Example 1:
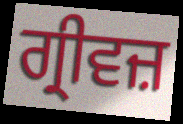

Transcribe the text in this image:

ਗ੍ਰੀਵਜ਼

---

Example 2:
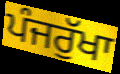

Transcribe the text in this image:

ਪੰਜਰੁੱਖਾ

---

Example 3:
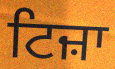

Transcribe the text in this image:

ਟਿਜ਼ਾ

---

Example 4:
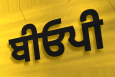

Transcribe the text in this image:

ਬੀਓਪੀ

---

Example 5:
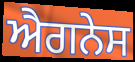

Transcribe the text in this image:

ਐਗਨੇਸ